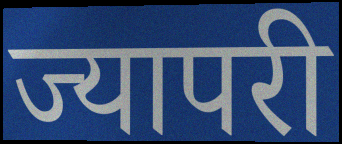
ज्यापरी